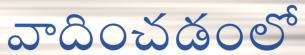
వాదించడంలో